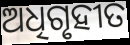
ଅଧିଗୃହୀତ